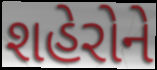
શહેરોને